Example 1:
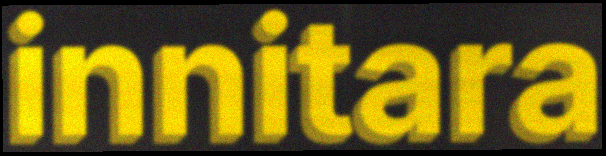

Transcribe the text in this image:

innitara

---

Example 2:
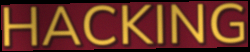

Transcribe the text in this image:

HACKING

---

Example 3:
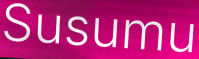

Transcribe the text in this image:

Susumu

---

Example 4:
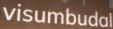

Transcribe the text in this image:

visumbudal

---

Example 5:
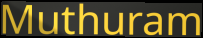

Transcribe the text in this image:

Muthuram